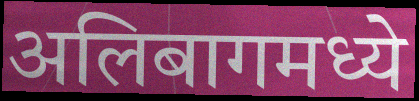
अलिबागमध्ये